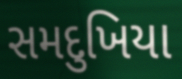
સમદુખિયા